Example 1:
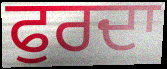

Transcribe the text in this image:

ਫੁਰਦਾ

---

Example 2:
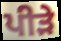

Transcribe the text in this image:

ਪੀੜੇ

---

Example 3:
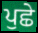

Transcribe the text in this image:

ਪੁਛੇ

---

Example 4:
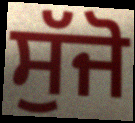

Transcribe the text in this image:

ਸੁੱਜੋ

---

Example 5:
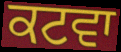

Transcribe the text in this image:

ਕਟਵਾ